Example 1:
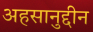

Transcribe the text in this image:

अहसानुद्दीन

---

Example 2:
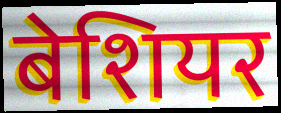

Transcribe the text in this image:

बेशियर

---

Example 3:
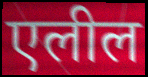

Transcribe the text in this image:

एलील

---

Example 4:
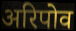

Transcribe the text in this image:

अरिपोव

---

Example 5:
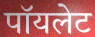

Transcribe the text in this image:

पॉयलेट